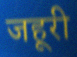
जहूरी